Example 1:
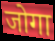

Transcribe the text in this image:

जोगा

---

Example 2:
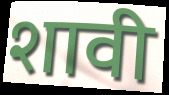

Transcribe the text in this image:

शावी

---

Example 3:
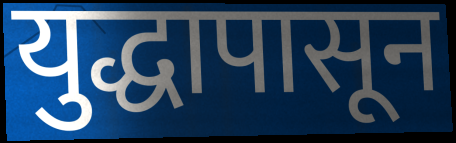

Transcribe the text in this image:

युद्धापासून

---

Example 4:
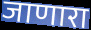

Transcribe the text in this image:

जाणारा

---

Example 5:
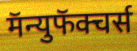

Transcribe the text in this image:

मॅन्युफॅक्चर्स